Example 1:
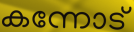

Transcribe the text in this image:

കന്നോട്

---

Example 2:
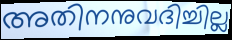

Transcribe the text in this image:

അതിനനുവദിച്ചില്ല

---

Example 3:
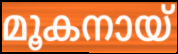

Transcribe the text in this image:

മൂകനായ്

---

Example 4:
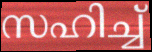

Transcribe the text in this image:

സഹിച്ച്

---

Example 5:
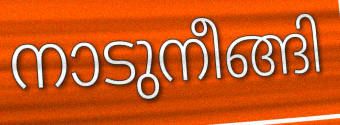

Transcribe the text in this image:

നാടുനീങ്ങി